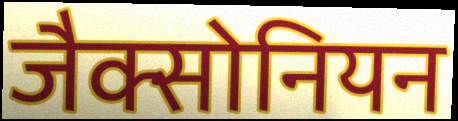
जैक्सोनियन